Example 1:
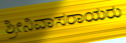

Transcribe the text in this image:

ಶ್ರೀನಿವಾಸರಾಯರು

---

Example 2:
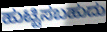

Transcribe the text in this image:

ಹುಟ್ಟಿಸಬಹುದು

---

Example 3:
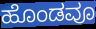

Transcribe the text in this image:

ಹೊಂಡವೂ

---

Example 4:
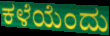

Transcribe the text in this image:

ಕಳೆಯೆಂದು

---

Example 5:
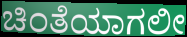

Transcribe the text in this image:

ಚಿಂತೆಯಾಗಲೀ